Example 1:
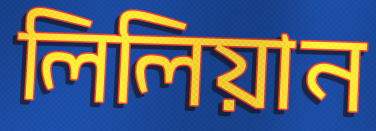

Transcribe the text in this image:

লিলিয়ান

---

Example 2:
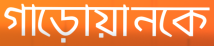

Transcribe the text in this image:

গাড়োয়ানকে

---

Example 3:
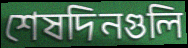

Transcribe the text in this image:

শেষদিনগুলি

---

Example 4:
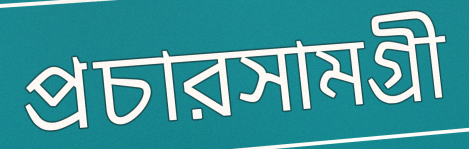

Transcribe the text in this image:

প্রচারসামগ্রী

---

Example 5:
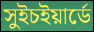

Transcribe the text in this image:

সুইচইয়ার্ডে